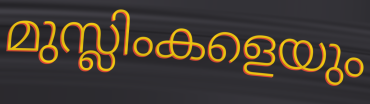
മുസ്ലിംകളെയും